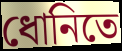
ধোনিতে